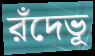
রঁদেভূ